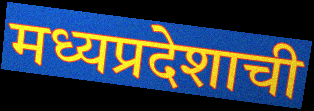
मध्यप्रदेशाची